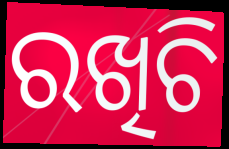
ରଖିଚି